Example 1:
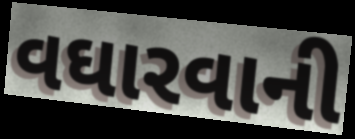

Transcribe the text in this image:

વઘારવાની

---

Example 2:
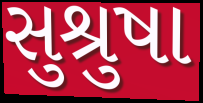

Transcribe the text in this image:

સુશ્રુષા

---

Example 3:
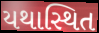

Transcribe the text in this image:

યથાસ્થિત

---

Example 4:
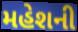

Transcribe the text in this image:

મહેશની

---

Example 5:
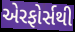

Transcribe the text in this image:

એરફોર્સથી